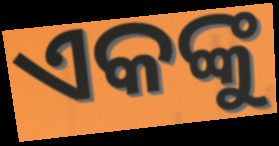
ଏକଙ୍କୁ